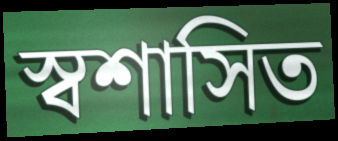
স্বশাসিত